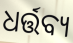
ଧର୍ତ୍ତବ୍ୟ